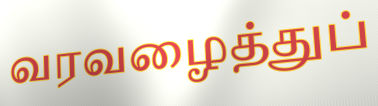
வரவழைத்துப்